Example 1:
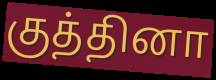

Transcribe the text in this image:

குத்தினா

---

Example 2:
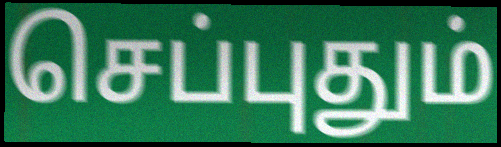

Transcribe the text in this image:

செப்புதும்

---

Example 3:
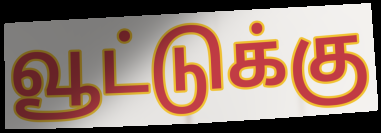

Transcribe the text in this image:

வூட்டுக்கு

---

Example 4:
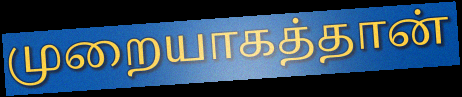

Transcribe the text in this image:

முறையாகத்தான்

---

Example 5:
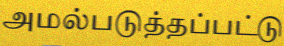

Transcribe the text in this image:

அமல்படுத்தப்பட்டு